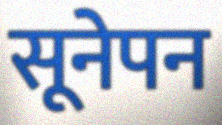
सूनेपन